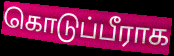
கொடுப்பீராக